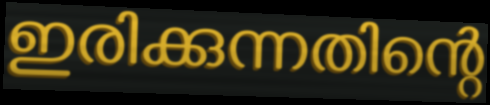
ഇരിക്കുന്നതിന്റെ